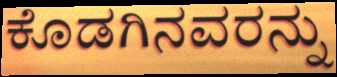
ಕೊಡಗಿನವರನ್ನು